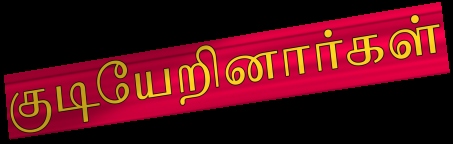
குடியேறினார்கள்